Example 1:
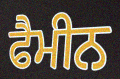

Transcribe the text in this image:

ਫੈਮੀਨ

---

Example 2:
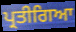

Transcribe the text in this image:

ਪ੍ਰਤੀਗਿਆ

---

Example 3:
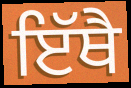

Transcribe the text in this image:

ਇੱਥੈ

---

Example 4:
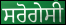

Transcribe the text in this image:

ਸਰੋਗੇਸੀ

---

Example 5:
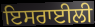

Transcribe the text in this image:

ਇਸਰਾਈਲੀ